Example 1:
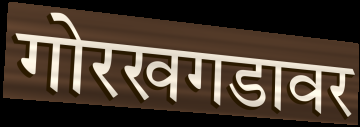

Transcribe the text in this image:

गोरखगडावर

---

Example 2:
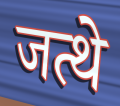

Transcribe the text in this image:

जत्थे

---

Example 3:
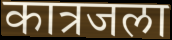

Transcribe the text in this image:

कात्रजला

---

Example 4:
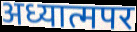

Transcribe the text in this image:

अध्यात्मपर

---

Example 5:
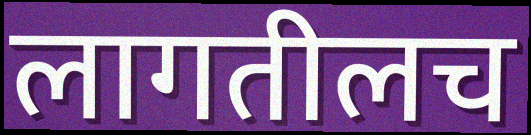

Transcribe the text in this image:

लागतीलच